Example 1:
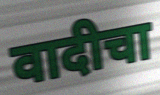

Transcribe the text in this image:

वादीचा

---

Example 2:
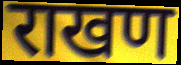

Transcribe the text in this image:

राखण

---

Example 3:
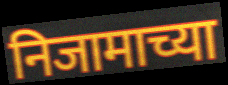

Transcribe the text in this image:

निजामाच्या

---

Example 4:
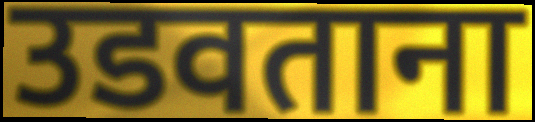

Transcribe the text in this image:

उडवताना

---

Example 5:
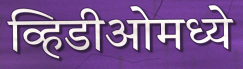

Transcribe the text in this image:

व्हिडीओमध्ये